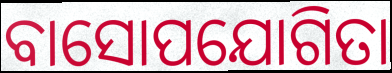
ବାସୋପଯୋଗିତା